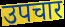
उपचार